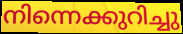
നിന്നെക്കുറിച്ചു